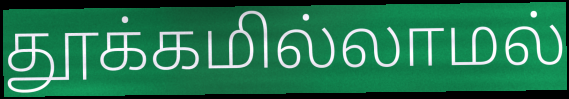
தூக்கமில்லாமல்